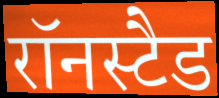
रॉनस्टैड